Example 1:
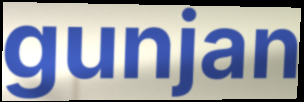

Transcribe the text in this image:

gunjan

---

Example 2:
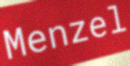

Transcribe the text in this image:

Menzel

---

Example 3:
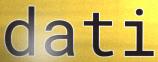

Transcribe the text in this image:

dati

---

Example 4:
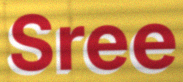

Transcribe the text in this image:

Sree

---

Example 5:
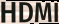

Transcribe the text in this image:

HDMI